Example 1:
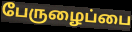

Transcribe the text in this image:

பேருழைப்பை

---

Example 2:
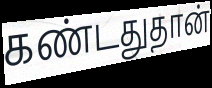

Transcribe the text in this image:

கண்டதுதான்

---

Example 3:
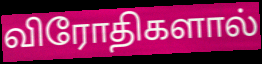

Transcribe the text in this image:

விரோதிகளால்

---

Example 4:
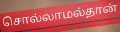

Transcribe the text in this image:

சொல்லாமல்தான்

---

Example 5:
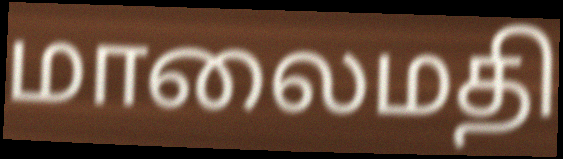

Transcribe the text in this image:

மாலைமதி